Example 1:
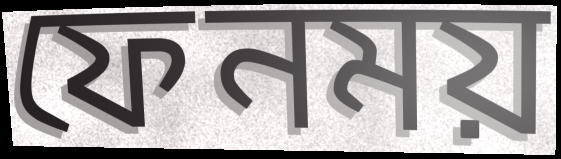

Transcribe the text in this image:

ফেনময়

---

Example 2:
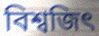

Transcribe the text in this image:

বিশ্বজিৎ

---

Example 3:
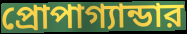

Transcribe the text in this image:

প্রোপাগ্যান্ডার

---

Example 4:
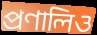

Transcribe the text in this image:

প্রণালিও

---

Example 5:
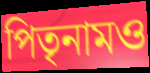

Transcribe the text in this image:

পিতৃনামও